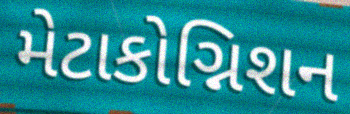
મેટાકોગ્નિશન